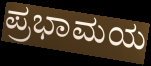
ಪ್ರಭಾಮಯ